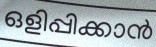
ഒളിപ്പിക്കാൻ